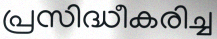
പ്രസിദ്ധീകരിച്ച